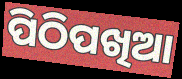
ପିଠିପଖିଆ